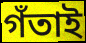
গঁতাই